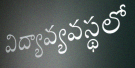
విద్యావ్యవస్థలో